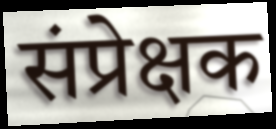
संप्रेक्षक